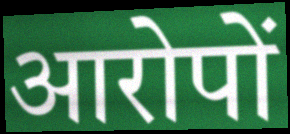
आरोपों